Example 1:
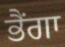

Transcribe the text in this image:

ਭੈਂਗਾ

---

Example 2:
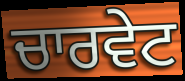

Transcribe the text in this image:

ਚਾਰਵੇਟ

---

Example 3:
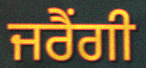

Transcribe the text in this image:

ਜਰੈਂਗੀ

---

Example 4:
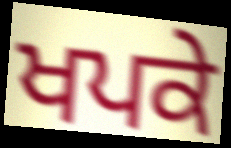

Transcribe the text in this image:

ਖਪਕੇ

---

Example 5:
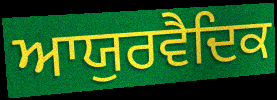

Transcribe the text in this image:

ਆਯੁਰਵੈਦਿਕ